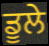
ਡੂਲੇ